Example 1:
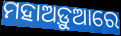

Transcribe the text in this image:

ମହାଅଡ଼ୁଆରେ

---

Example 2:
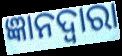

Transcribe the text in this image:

ଜ୍ଞାନଦ୍ଵାରା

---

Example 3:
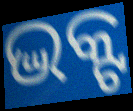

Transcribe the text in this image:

ଦ୍ଭକ୍ଟ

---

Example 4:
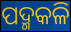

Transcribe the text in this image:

ପଦ୍ମକଳି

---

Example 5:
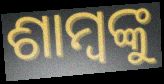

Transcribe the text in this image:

ଶାମ୍ବଙ୍କୁ